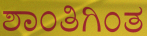
ಶಾಂತಿಗಿಂತ